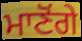
ਮਾਣੋਂਗੇ